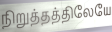
நிறுத்தத்திலேயே